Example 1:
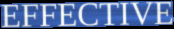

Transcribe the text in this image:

EFFECTIVE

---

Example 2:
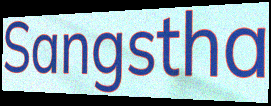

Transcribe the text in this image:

Sangstha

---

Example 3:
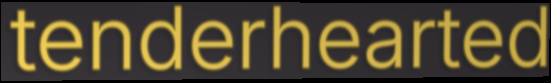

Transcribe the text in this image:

tenderhearted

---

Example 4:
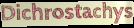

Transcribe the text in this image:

Dichrostachys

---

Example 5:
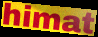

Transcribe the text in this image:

himat